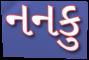
નનકુ